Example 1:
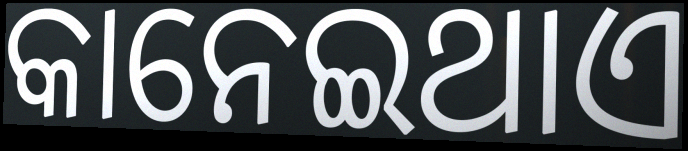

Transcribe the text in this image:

କାନେଇଥାଏ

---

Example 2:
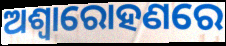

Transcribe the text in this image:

ଅଶ୍ଵାରୋହଣରେ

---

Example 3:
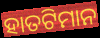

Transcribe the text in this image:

ହାତଟିମାନ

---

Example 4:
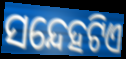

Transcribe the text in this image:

ସନ୍ଦେହଟିଏ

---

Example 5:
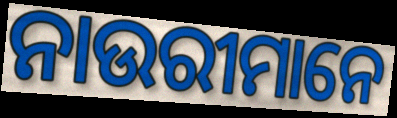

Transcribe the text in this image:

ନାଉରୀମାନେ